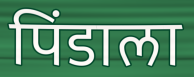
पिंडाला